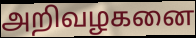
அறிவழகனை